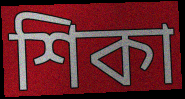
শিকা